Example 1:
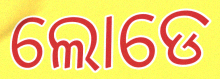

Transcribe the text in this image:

ଲୋଡେ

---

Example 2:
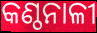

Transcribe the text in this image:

କଣ୍ଠନାଳୀ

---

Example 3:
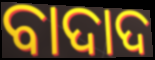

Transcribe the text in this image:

ବାଦାଦ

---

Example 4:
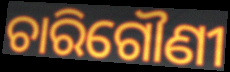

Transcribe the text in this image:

ଚାରିଗୌଣୀ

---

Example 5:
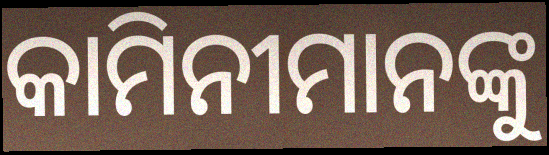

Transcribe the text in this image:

କାମିନୀମାନଙ୍କୁ